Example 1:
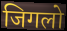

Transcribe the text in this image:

जिगलो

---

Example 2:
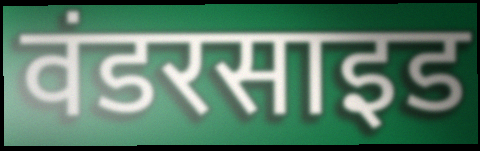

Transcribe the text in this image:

वंडरसाइड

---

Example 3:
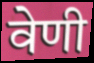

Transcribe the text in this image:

वेणी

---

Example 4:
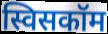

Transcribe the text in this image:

स्विसकॉम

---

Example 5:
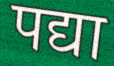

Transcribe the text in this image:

पद्या